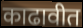
काढावीत